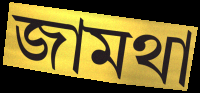
জামথা